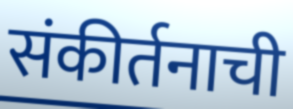
संकीर्तनाची